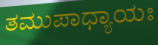
ತಮುಪಾಧ್ಯಾಯಃ